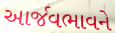
આર્જવભાવને